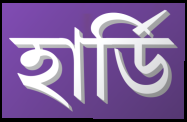
হাৰ্ডি